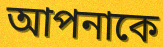
আপনাকে